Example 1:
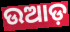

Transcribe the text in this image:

ଉଆଡ଼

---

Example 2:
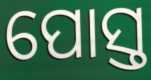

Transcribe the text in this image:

ପୋସ୍ତ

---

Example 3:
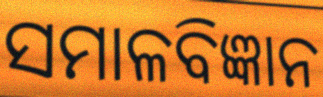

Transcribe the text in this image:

ସମାଳବିଜ୍ଞାନ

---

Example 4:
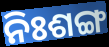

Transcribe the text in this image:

ନିଃଶଙ୍ଗ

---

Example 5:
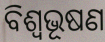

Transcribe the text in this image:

ବିଶ୍ୱଭୂଷଣ